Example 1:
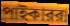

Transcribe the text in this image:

পাইকাররা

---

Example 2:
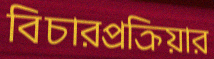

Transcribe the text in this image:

বিচারপ্রক্রিয়ার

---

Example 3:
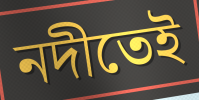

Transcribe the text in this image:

নদীতেই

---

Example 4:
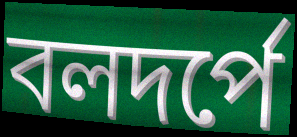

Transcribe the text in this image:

বলদর্পে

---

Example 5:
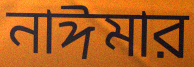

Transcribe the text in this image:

নাঈমার